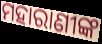
ମହାରାଣୀଙ୍କ